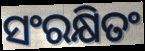
ସଂରକ୍ଷିତଂ